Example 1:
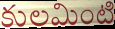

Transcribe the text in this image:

కులమింటి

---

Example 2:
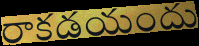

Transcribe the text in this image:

రాకడయందు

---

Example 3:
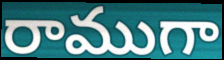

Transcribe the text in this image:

రాముగా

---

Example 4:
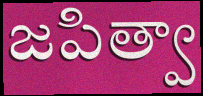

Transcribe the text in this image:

జపిత్వా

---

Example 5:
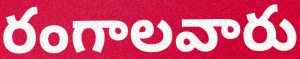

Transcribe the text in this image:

రంగాలవారు